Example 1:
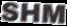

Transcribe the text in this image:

SHM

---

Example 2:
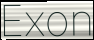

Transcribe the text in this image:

Exon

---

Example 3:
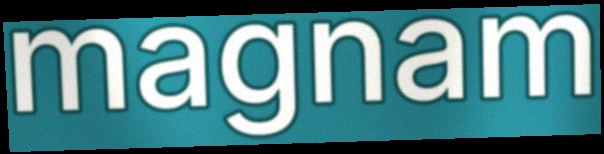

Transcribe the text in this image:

magnam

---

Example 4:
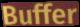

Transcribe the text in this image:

Buffer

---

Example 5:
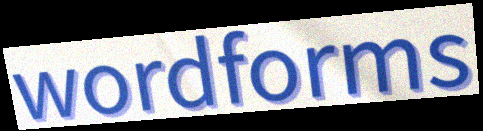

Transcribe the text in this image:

wordforms